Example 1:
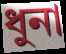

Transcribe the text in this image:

ধুনা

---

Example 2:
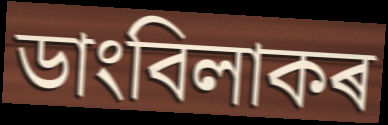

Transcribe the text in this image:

ডাংবিলাকৰ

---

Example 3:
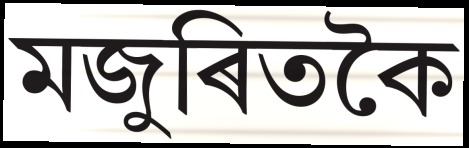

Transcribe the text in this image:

মজুৰিতকৈ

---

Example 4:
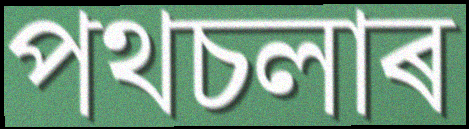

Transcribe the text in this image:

পথচলাৰ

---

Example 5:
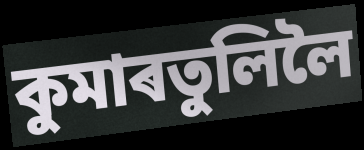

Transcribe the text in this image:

কুমাৰতুলিলৈ